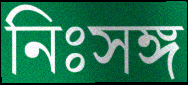
নিঃসঙ্গ